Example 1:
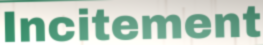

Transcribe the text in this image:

Incitement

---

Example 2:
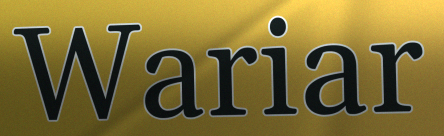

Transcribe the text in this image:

Wariar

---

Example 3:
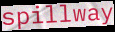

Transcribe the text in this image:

spillway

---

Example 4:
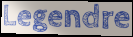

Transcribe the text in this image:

Legendre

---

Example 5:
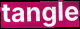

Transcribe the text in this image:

tangle